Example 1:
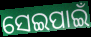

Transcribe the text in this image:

ସେଇପାଇଁ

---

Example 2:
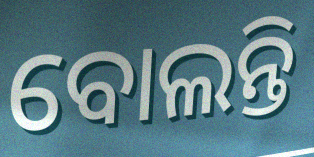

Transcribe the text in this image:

ବୋଲନ୍ତି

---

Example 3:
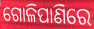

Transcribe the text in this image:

ଗୋଳିପାଣିରେ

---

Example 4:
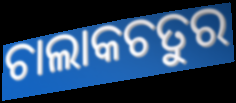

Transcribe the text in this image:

ଚାଲାକଚତୁର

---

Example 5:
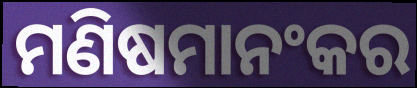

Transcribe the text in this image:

ମଣିଷମାନଂକର